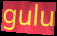
gulu